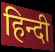
हिन्दी